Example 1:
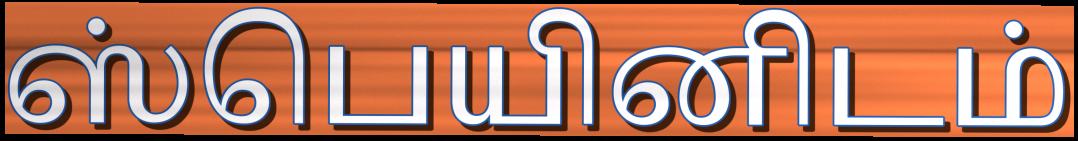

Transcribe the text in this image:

ஸ்பெயினிடம்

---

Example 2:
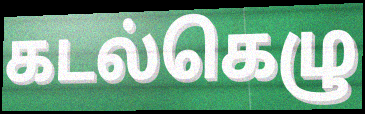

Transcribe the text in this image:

கடல்கெழு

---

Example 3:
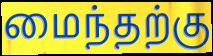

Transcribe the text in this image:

மைந்தற்கு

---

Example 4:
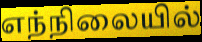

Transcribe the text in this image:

எந்நிலையில்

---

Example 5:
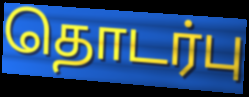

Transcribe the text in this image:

தொடர்பு